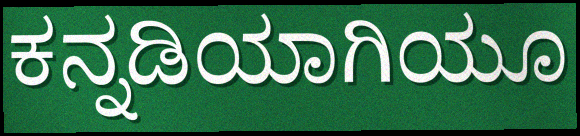
ಕನ್ನಡಿಯಾಗಿಯೂ